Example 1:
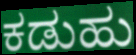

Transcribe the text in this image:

ಕಡುಹು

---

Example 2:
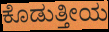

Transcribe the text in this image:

ಕೊಡುತ್ತೀಯ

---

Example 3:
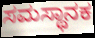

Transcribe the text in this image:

ಸಮಸ್ಥಾನಕ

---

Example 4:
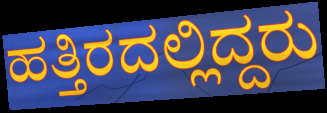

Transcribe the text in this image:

ಹತ್ತಿರದಲ್ಲಿದ್ದರು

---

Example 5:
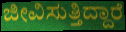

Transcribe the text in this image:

ಜೀವಿಸುತ್ತಿದ್ದಾರೆ